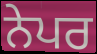
ਨੇਪਰ